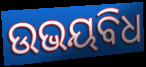
ଉଭୟବିଧ